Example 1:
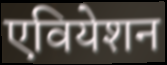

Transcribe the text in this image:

एवियेशन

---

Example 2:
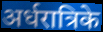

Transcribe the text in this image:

अर्धरात्रिके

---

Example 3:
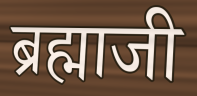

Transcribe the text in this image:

ब्रह्माजी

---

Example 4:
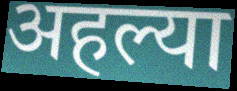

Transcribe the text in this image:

अहल्या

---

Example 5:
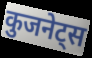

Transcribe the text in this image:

कुजनेट्स